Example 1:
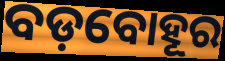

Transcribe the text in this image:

ବଡ଼ବୋହୂର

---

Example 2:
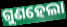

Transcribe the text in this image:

ଗୁଣହେଲା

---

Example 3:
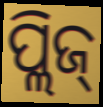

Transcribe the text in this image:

ପ୍ଲିଜ୍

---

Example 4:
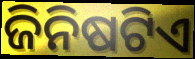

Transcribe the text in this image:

ଜିନିଷଟିଏ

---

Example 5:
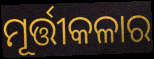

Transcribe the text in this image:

ମୂର୍ତ୍ତୀକଳାର